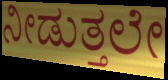
ನೀಡುತ್ತಲೇ